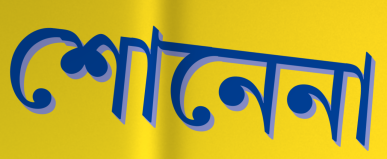
শোনেনা